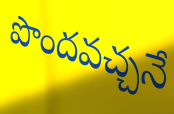
పొందవచ్చనే